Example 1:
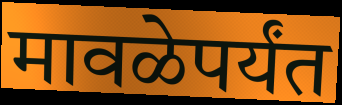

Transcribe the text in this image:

मावळेपर्यंत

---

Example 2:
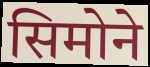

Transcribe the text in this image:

सिमोने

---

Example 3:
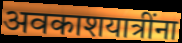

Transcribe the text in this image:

अवकाशयात्रींना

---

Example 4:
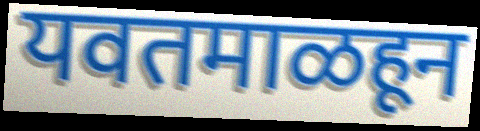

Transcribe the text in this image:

यवतमाळहून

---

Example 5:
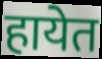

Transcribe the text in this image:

हायेत